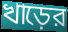
খাড়ের